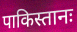
पाकिस्तानः